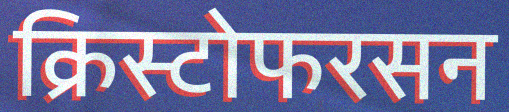
क्रिस्टोफरसन